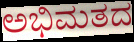
ಅಭಿಮತದ